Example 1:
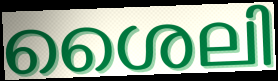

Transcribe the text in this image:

ശൈലി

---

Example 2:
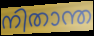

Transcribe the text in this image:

നിതാന്ത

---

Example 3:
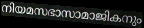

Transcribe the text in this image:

നിയമസഭാസാമാജികനും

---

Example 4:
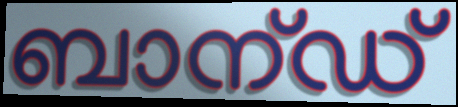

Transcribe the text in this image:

ബാന്ഡ്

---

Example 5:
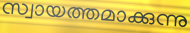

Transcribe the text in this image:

സ്വായത്തമാക്കുന്നു